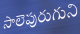
సాలెపురుగుని